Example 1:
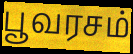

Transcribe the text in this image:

பூவரசம்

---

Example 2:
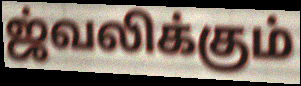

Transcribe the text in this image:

ஜ்வலிக்கும்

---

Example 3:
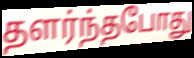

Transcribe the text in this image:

தளர்ந்தபோது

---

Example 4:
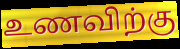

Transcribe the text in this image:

உணவிற்கு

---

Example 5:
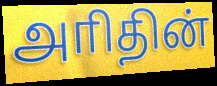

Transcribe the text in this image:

அரிதின்